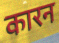
कारन